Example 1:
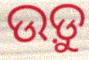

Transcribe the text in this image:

ଉଡ଼ୁ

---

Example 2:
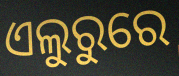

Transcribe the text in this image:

ଏଲୁରୁରେ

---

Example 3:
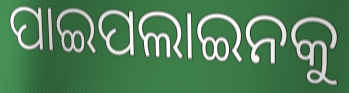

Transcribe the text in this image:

ପାଇପଲାଇନକୁ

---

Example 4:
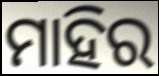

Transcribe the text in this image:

ମାହିର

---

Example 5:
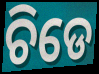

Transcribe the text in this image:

ଚିଡେ